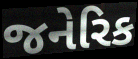
જનેરિક